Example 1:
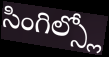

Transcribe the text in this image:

సింగిల్స్లో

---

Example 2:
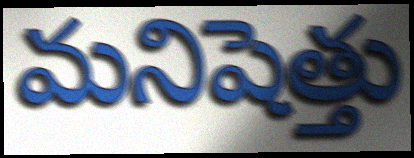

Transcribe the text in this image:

మనిషెత్తు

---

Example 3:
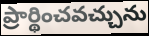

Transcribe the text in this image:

ప్రార్థించవచ్చును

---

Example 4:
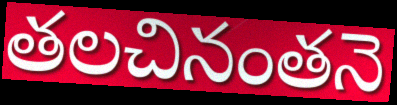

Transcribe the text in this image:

తలచినంతనె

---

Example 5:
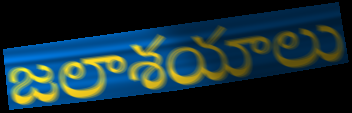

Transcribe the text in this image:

జలాశయాలు